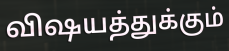
விஷயத்துக்கும்